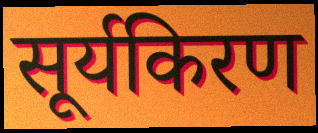
सूर्यकिरण